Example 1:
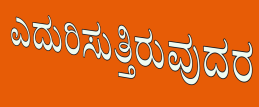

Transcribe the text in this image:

ಎದುರಿಸುತ್ತಿರುವುದರ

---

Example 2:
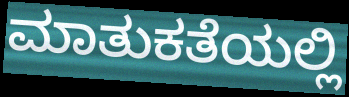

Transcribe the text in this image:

ಮಾತುಕತೆಯಲ್ಲಿ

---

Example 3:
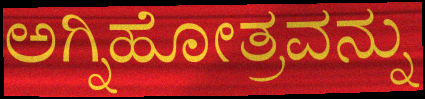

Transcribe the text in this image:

ಅಗ್ನಿಹೋತ್ರವನ್ನು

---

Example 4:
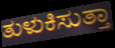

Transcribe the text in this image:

ತುಳುಕಿಸುತ್ತಾ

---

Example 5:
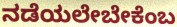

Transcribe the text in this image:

ನಡೆಯಲೇಬೇಕೆಂಬ